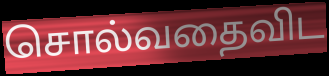
சொல்வதைவிட